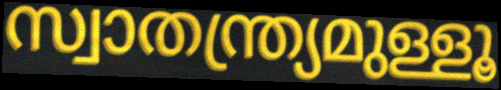
സ്വാതന്ത്ര്യമുള്ളൂ